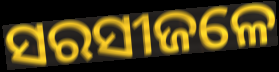
ସରସୀଜଳେ